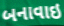
બનાવાઇ